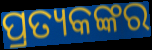
ପ୍ରତ୍ୟକଙ୍କର